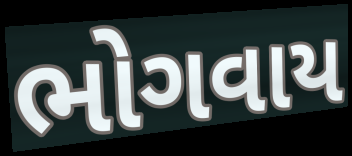
ભોગવાય